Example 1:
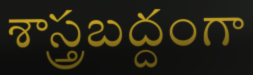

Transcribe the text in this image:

శాస్త్రబద్దంగా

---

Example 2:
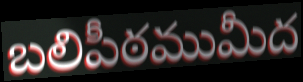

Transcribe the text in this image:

బలిపీఠముమీద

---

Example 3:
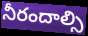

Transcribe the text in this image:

నీరందాల్సి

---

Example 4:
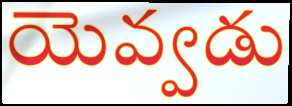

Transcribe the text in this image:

యెవ్వడు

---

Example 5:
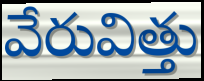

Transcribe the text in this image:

వేరువిత్తు